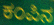
ಕಂಪಿನ